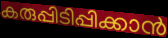
കരുപ്പിടിപ്പിക്കാൻ